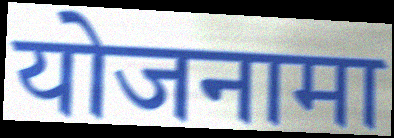
योजनामा